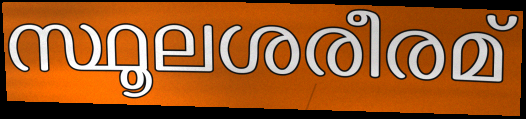
സ്ഥൂലശരീരമ്